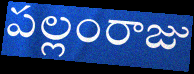
పల్లంరాజు